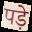
पड़े